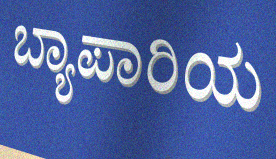
ಬ್ಯಾಪಾರಿಯ